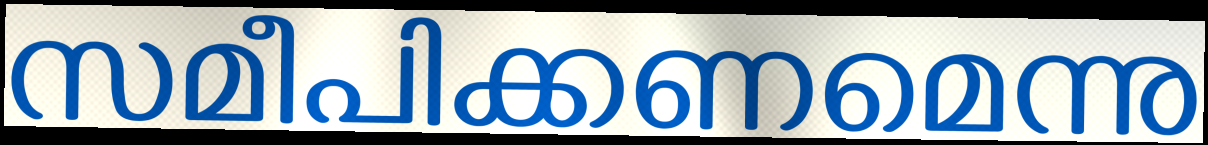
സമീപിക്കണമെന്നു